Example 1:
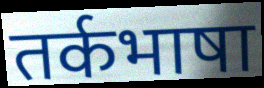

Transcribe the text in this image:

तर्कभाषा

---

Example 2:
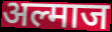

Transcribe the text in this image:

अल्माज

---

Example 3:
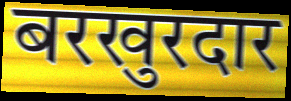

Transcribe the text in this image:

बरखुरदार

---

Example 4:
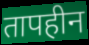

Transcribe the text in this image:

तापहीन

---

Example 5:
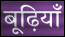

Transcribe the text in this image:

बूढ़ियाँ